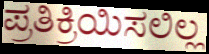
ಪ್ರತಿಕ್ರಿಯಿಸಲಿಲ್ಲ